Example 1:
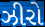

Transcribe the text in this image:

ઝીરો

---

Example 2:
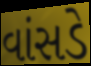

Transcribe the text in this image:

વાંસડે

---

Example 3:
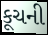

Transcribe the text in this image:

કૂચની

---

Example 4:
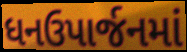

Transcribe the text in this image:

ધનઉપાર્જનમાં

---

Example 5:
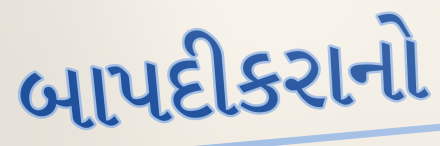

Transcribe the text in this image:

બાપદીકરાનો